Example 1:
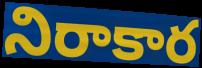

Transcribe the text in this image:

నిరాకార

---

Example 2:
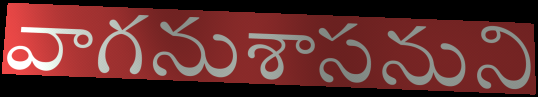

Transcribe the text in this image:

వాగనుశాసనుని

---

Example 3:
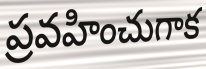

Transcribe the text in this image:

ప్రవహించుగాక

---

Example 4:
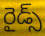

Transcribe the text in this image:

రైడ్స్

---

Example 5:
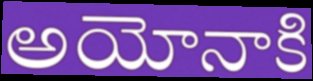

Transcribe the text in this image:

అయోనాకి